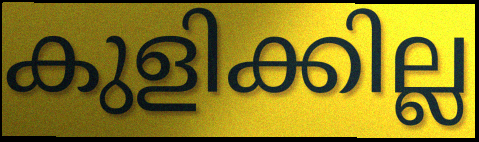
കുളിക്കില്ല